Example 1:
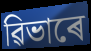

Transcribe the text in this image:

ৱিভাৰে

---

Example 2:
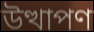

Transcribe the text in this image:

উত্থাপণ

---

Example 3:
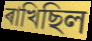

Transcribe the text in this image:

ৰাখিছিল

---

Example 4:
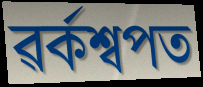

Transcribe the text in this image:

ৱৰ্কশ্বপত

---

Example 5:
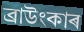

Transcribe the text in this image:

ব্ৰাউংকাৰ